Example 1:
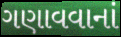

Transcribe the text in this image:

ગણાવવાનાં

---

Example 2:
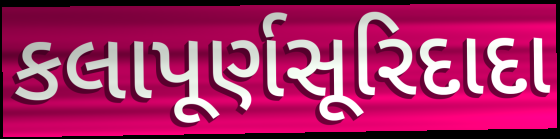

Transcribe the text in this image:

કલાપૂર્ણસૂરિદાદા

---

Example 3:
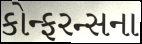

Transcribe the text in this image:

કોન્ફરન્સના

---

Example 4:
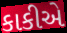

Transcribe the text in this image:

કાકીએ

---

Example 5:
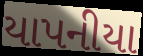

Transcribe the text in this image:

યાપનીયા